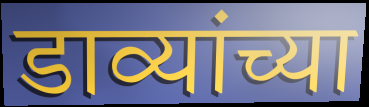
डाव्यांच्या